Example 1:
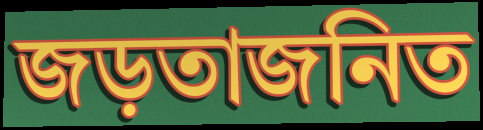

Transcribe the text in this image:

জড়তাজনিত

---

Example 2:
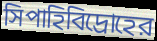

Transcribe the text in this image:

সিপাহিবিদ্রোহের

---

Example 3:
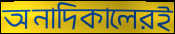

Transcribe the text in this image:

অনাদিকালেরই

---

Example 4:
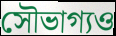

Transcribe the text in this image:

সৌভাগ্যও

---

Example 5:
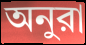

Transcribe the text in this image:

অনুরা